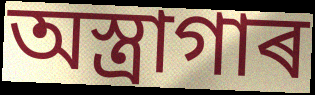
অস্ত্ৰাগাৰ